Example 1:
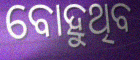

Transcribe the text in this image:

ବୋହୁଥିବ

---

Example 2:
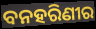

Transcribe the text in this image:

ବନହରିଣୀର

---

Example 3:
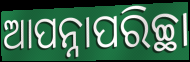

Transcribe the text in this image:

ଆପନ୍ନାପରିଚ୍ଛା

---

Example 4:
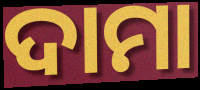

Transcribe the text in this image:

ଦାମା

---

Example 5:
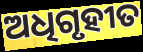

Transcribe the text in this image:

ଅଧିଗୃହୀତ